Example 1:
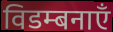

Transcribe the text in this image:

विडम्बनाएँ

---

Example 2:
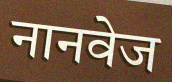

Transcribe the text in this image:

नानवेज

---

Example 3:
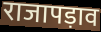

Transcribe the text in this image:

राजापड़ाव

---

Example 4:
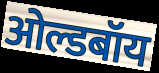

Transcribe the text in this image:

ओल्डबॉय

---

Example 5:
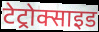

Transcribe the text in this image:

टेट्रोक्साइड